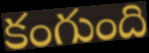
కంగుంది